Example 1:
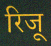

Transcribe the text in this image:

रिजू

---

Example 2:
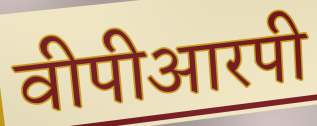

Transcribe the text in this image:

वीपीआरपी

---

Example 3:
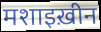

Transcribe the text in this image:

मशाइख़ीन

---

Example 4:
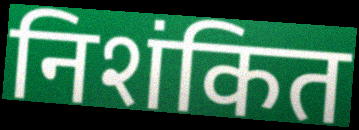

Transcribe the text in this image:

निशंकित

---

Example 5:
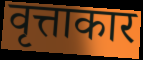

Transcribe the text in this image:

वृत्ताकार